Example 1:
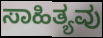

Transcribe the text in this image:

ಸಾಹಿತ್ಯವು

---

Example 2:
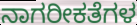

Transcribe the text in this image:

ನಾಗರೀಕತೆಗಳ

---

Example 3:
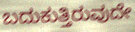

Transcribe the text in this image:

ಬದುಕುತ್ತಿರುವುದೇ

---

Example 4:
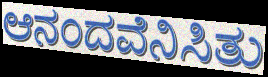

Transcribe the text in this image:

ಆನಂದವೆನಿಸಿತು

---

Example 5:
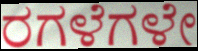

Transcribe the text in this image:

ರಗಳೆಗಳೇ